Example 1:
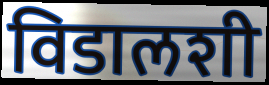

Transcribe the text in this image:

विडालशी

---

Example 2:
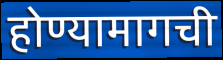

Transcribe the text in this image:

होण्यामागची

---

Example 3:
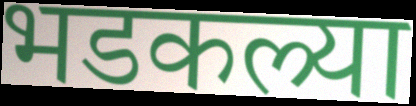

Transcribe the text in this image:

भडकल्या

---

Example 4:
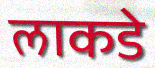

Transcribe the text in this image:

लाकडे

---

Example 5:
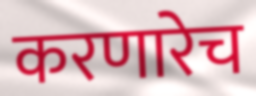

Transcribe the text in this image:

करणारेच